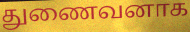
துணைவனாக